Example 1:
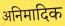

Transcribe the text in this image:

अनिमादिक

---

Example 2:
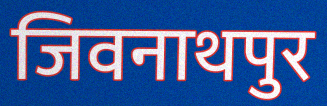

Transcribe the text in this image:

जिवनाथपुर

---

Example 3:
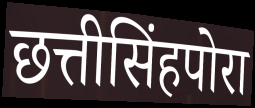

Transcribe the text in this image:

छत्तीसिंहपोरा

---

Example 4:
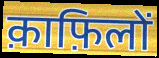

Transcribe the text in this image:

क़ाफ़िलों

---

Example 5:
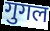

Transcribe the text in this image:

गुगल